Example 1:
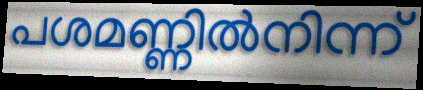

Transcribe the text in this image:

പശമണ്ണിൽനിന്ന്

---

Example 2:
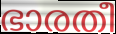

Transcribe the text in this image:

ഭാരതീ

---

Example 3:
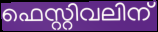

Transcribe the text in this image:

ഫെസ്റ്റിവലിന്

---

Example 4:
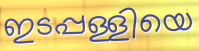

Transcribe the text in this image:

ഇടപ്പള്ളിയെ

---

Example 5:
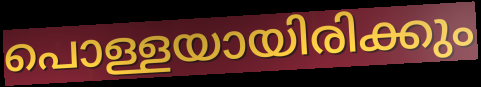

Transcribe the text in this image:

പൊള്ളയായിരിക്കും